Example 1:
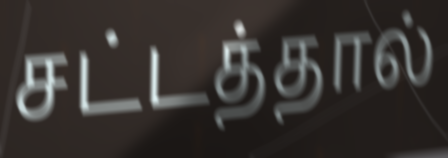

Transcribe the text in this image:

சட்டத்தால்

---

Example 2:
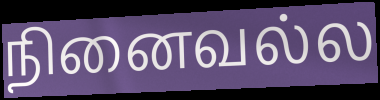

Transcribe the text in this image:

நினைவல்ல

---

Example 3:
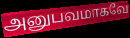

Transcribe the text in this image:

அனுபவமாகவே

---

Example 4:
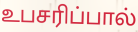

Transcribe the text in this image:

உபசரிப்பால்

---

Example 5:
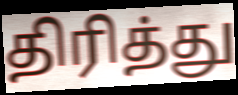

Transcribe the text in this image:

திரித்து